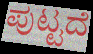
ಪುಟ್ಟದೆ